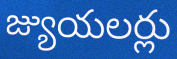
జ్యుయలర్లు